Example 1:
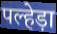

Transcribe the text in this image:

पल्हेड़ा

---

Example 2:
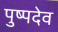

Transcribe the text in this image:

पुष्पदेव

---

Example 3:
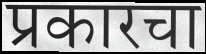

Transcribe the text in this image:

प्रकारचा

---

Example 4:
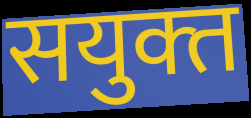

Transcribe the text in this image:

सयुक्‍त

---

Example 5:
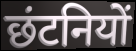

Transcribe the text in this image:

छंटनियों